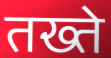
तख्ते